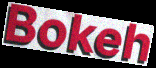
Bokeh